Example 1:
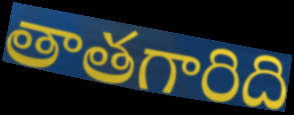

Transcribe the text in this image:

తాతగారిది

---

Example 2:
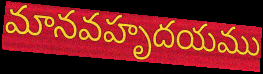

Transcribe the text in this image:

మానవహృదయము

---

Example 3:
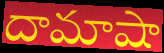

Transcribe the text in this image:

దామాషా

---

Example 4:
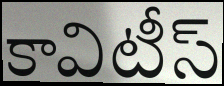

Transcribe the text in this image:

కావిటీస్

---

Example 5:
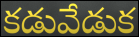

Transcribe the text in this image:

కడువేడుక